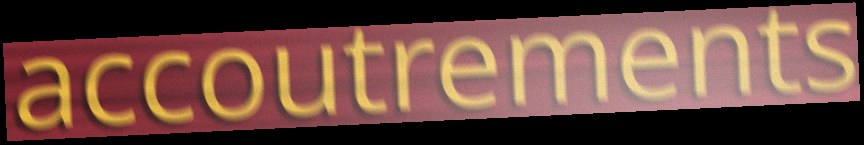
accoutrements